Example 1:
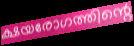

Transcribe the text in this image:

ക്ഷയരോഗത്തിന്റെ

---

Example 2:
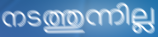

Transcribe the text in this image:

നടത്തുന്നില്ല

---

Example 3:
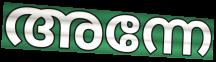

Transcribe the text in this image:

അന്നേ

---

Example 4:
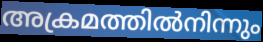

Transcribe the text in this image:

അക്രമത്തിൽനിന്നും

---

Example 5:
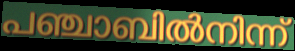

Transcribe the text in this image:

പഞ്ചാബിൽനിന്ന്